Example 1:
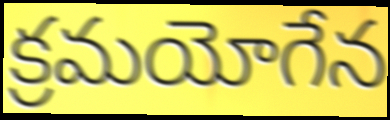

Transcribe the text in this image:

క్రమయోగేన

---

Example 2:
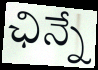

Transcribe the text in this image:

ఛిన్నే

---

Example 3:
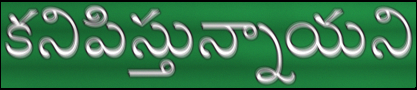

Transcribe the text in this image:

కనిపిస్తున్నాయని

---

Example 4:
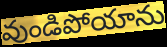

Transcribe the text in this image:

వుండిపోయాను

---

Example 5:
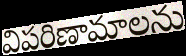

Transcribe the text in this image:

విపరిణామాలను